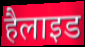
हैलाइड